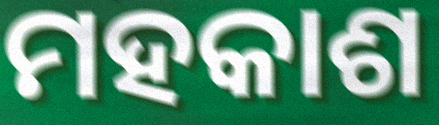
ମହକାଶ